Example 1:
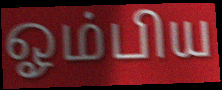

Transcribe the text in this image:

ஓம்பிய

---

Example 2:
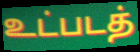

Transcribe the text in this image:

உட்படத்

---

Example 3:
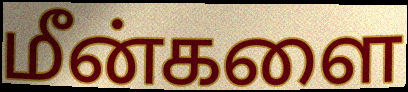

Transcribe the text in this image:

மீன்களை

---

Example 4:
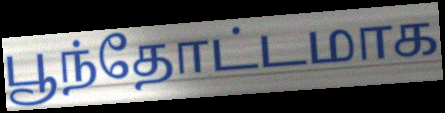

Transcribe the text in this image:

பூந்தோட்டமாக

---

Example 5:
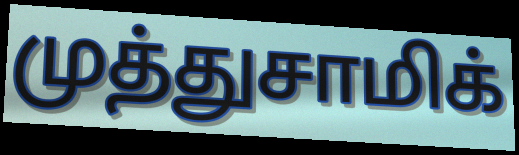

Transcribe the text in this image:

முத்துசாமிக்